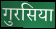
गुरसिया